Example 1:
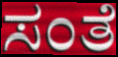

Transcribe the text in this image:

ಸಂತೆ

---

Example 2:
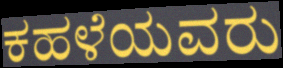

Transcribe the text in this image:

ಕಹಳೆಯವರು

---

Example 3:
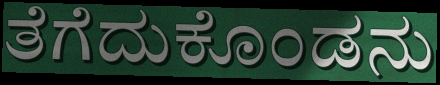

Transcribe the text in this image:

ತೆಗೆದುಕೊಂಡನು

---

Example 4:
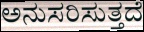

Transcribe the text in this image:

ಅನುಸರಿಸುತ್ತದೆ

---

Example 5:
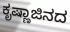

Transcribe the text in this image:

ಕೃಷ್ಣಾಜಿನದ